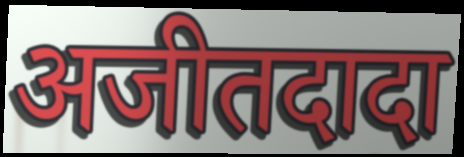
अजीतदादा